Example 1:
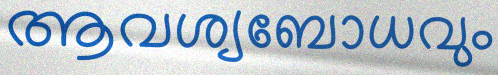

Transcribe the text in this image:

ആവശ്യബോധവും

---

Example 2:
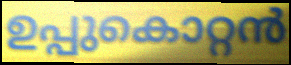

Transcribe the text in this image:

ഉപ്പുകൊറ്റൻ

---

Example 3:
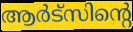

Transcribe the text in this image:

ആർട്സിന്റെ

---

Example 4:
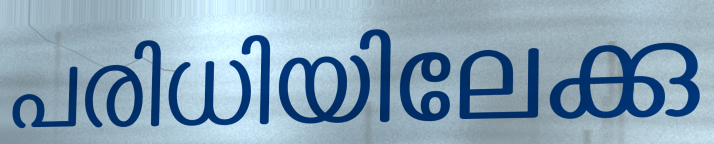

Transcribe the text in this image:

പരിധിയിലേക്കു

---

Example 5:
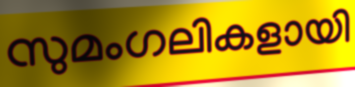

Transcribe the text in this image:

സുമംഗലികളായി